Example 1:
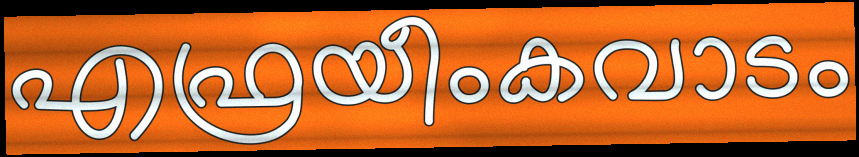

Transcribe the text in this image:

എഫ്രയീംകവാടം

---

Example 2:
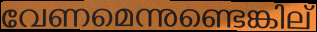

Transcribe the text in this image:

വേണമെന്നുണ്ടെങ്കില്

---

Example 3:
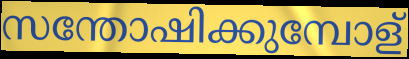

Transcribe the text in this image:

സന്തോഷിക്കുമ്പോള്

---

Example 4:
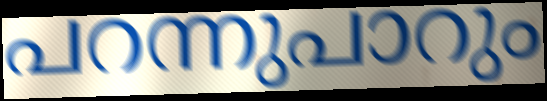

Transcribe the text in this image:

പറന്നുപാറും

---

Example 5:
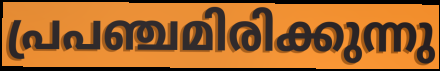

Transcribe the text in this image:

പ്രപഞ്ചമിരിക്കുന്നു